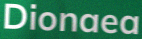
Dionaea